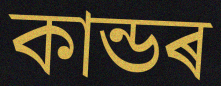
কান্ডৰ